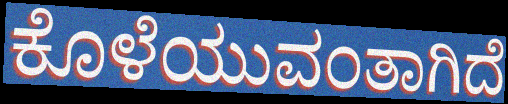
ಕೊಳೆಯುವಂತಾಗಿದೆ